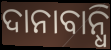
ଦାନାବାନ୍ଧି